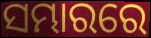
ସମ୍ଭାରରେ